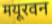
मयूरवन